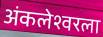
अंकलेश्वरला